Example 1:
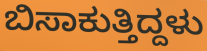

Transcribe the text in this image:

ಬಿಸಾಕುತ್ತಿದ್ದಳು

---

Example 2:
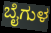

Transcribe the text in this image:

ಬೈಗುಳ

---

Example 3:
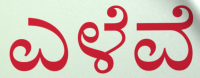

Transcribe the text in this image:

ಎಳೆವೆ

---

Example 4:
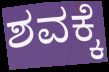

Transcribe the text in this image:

ಶವಕ್ಕೆ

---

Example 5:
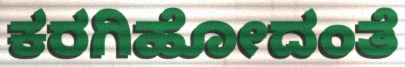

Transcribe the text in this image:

ಕರಗಿಹೋದಂತೆ